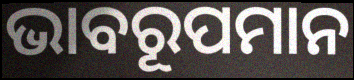
ଭାବରୂପମାନ